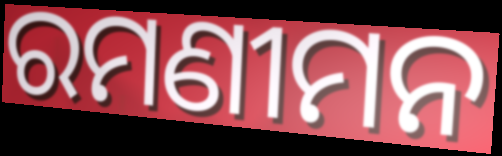
ରମଣୀମନ